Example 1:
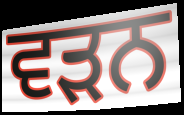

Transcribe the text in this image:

ਵਡ਼ਨ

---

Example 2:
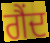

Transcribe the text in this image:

ਗੈਂਦ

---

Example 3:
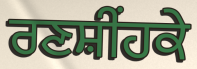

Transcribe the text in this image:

ਰਣਸ਼ੀਂਹਕੇ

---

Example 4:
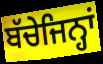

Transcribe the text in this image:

ਬੱਚੇਜਿਨ੍ਹਾਂ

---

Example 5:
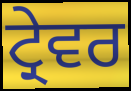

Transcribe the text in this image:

ਟ੍ਰੇਵਰ